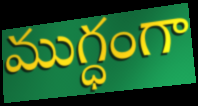
ముగ్ధంగా